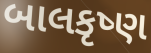
બાલકૃષ્ણ